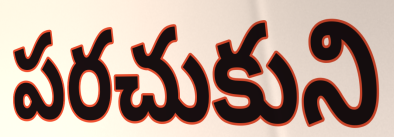
పరచుకుని